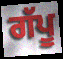
ਗੱਪੂ